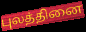
புலத்தினை